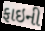
ફાઇની